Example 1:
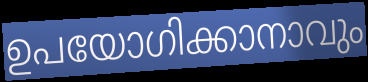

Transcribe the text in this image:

ഉപയോഗിക്കാനാവും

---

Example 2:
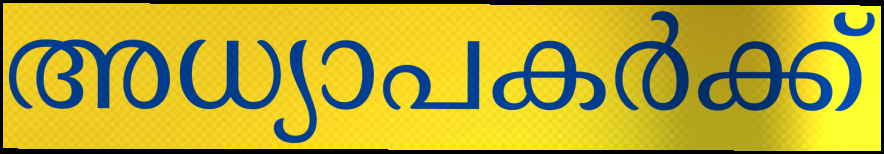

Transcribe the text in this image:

അധ്യാപകർക്ക്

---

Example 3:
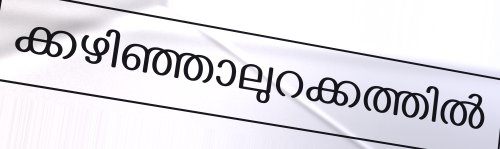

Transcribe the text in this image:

ക്കഴിഞ്ഞാലുറക്കത്തിൽ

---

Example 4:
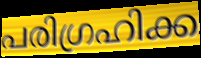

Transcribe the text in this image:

പരിഗ്രഹിക്ക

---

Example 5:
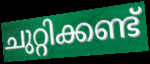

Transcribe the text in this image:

ചുറ്റിക്കണ്ട്